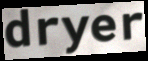
dryer